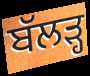
ਬੱਲੜ੍ਹ